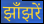
झाँझरें